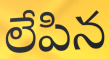
లేపిన